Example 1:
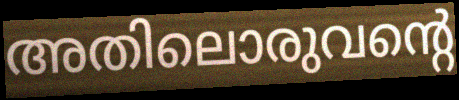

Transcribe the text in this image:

അതിലൊരുവന്റെ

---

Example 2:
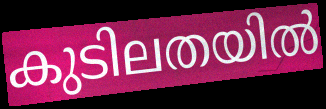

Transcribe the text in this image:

കുടിലതയിൽ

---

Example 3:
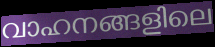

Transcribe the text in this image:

വാഹനങ്ങളിലെ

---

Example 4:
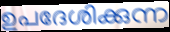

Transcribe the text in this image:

ഉപദേശിക്കുന്ന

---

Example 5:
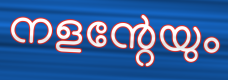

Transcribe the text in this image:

നളന്റേയും